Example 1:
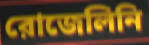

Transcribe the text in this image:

রোজেলিনি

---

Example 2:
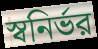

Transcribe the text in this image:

স্বনির্ভর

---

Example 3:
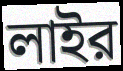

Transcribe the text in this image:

লাইর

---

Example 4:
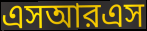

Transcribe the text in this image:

এসআরএস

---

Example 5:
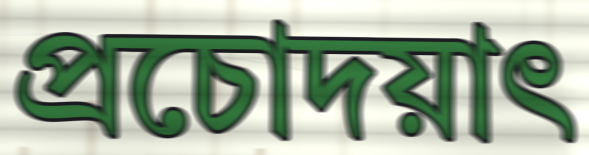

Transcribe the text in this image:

প্রচোদয়াৎ